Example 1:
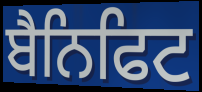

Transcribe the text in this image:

ਬੈਨਿਫਿਟ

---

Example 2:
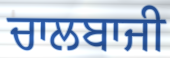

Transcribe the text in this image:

ਚਾਲਬਾਜੀ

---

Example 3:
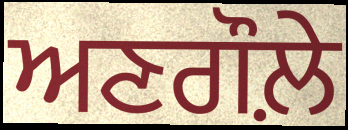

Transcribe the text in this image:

ਅਣਗੌਲ਼ੇ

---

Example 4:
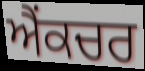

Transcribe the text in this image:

ਐਂਕਚਰ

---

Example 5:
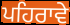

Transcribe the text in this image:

ਪਹਿਰਾਵੇ